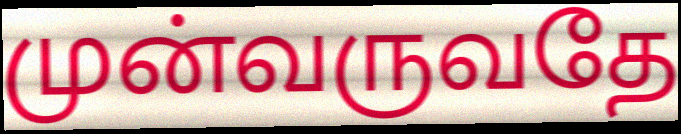
முன்வருவதே